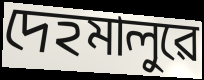
দেহমালুৱে